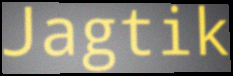
Jagtik